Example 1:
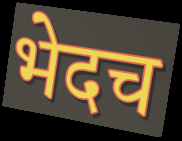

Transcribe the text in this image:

भेदच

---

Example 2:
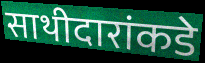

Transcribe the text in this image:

साथीदारांकडे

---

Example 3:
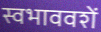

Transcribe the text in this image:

स्वभाववशें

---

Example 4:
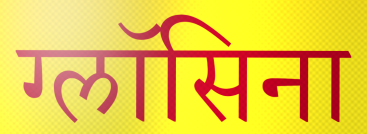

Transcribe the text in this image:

ग्लॉसिना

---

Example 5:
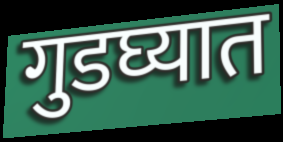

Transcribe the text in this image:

गुडघ्यात